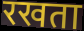
रखता